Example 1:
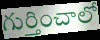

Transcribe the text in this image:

గుర్తించాలో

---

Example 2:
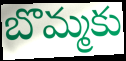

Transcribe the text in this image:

బొమ్మకు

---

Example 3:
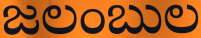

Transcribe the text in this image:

జలంబుల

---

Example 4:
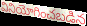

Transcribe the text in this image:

వినియోగించబడిన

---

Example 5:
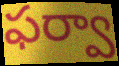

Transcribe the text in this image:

ఫర్వా